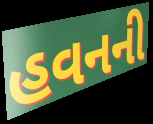
હવનની